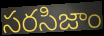
సరసిజాం